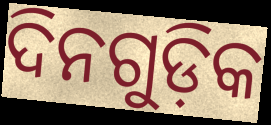
ଦିନଗୁଡ଼ିକ